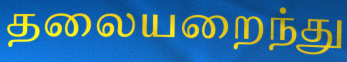
தலையறைந்து